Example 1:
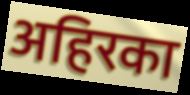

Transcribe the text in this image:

अहिरका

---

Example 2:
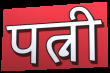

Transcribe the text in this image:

पत्नी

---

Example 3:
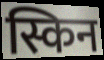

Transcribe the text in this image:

स्किन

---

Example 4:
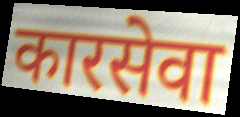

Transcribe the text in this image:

कारसेवा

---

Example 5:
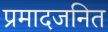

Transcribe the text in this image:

प्रमादजनित